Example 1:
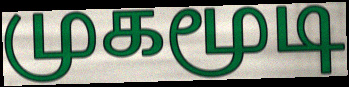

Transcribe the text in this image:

முகமூடி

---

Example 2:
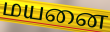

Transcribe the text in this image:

மயனை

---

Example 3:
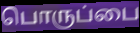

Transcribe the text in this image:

பொருப்பை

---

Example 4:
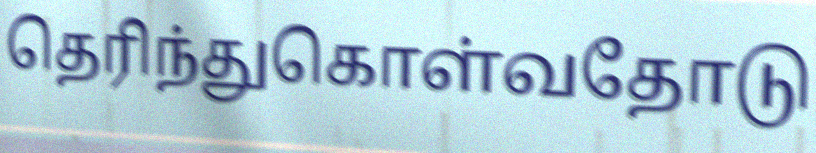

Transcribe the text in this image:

தெரிந்துகொள்வதோடு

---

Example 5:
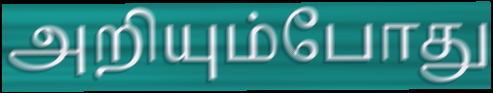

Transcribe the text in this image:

அறியும்போது